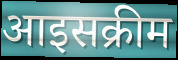
आइसक्रीम